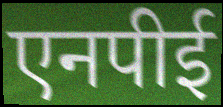
एनपीई